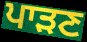
ਪਾੜਣ